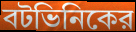
বটভিনিকের